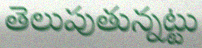
తెలుపుతున్నట్టు